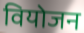
वियोजन